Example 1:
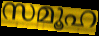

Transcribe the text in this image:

സമൂഹ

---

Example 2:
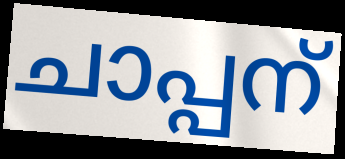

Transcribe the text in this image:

ചാപ്പന്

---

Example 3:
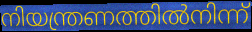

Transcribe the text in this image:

നിയന്ത്രണത്തിൽനിന്ന്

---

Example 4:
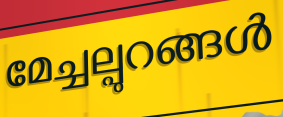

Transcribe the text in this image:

മേച്ചല്പുറങ്ങൾ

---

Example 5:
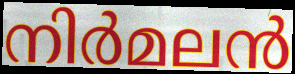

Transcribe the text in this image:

നിർമലൻ